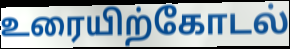
உரையிற்கோடல்